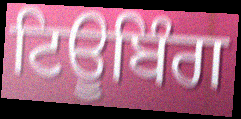
ਟਿਊਬਿੰਗ